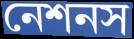
নেশনস